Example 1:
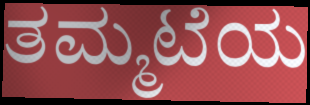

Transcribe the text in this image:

ತಮ್ಮಟೆಯ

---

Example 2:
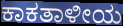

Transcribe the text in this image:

ಕಾಕತಾಳೀಯ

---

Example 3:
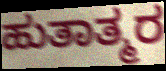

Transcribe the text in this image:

ಹುತಾತ್ಮರ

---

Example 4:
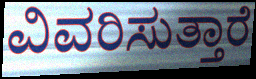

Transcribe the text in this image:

ವಿವರಿಸುತ್ತಾರೆ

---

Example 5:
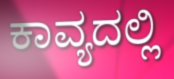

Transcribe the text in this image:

ಕಾವ್ಯದಲ್ಲಿ